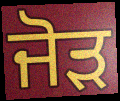
ਜੋੜ